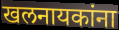
खलनायकांना